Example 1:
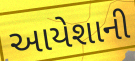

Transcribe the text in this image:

આયેશાની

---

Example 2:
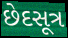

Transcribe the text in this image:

છેદસૂત્ર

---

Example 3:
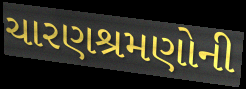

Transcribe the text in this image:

ચારણશ્રમણોની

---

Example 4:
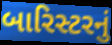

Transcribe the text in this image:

બારિસ્ટરનું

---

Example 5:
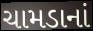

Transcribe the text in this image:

ચામડાનાં